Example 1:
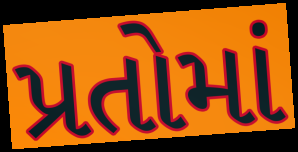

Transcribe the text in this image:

પ્રતોમાં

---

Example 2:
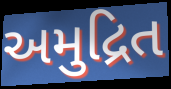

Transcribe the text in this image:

અમુદ્રિત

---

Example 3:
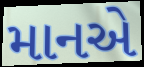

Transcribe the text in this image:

માનએ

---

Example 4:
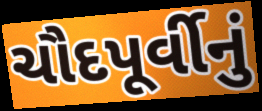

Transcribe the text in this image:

ચૌદપૂર્વીનું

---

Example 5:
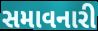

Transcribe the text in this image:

સમાવનારી